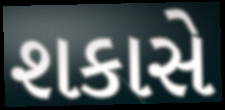
શકાસે